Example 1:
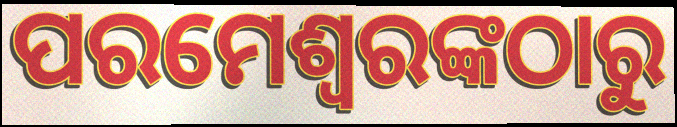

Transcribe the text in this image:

ପରମେଶ୍ଵରଙ୍କଠାରୁ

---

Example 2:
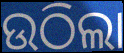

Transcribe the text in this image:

ଉଠିଲା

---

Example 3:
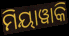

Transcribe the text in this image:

ମିୟାୱାକି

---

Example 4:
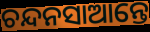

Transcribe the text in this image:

ଚନ୍ଦନସାଆନ୍ତେ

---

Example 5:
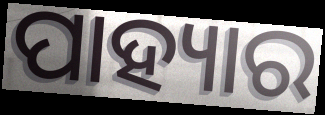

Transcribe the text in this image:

ପାହ୍ୟାର